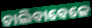
ଚାଲିବାବେଳେ